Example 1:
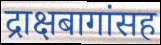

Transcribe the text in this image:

द्राक्षबागांसह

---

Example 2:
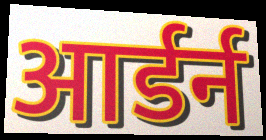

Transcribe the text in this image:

आर्डर्न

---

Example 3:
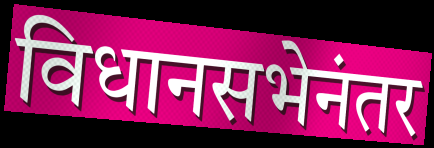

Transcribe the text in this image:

विधानसभेनंतर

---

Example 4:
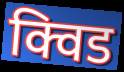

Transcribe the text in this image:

क्विड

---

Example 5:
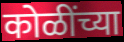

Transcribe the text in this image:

कोळींच्या